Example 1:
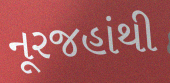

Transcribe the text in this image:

નૂરજહાંથી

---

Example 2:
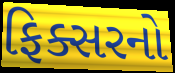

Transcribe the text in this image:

ફિક્સરનો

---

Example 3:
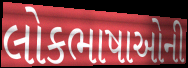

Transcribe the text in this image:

લોકભાષાઓની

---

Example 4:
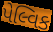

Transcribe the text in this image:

પેલ્વિક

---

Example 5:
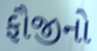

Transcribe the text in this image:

ફૌજીનો